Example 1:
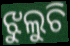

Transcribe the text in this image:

ଝୁଲୁଚି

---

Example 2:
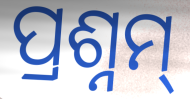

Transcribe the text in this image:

ପ୍ରଶ୍ନମ୍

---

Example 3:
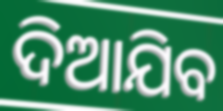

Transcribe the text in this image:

ଦିଆଯିବ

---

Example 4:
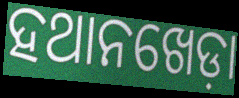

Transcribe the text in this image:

ହଥାନଖେଡ଼ା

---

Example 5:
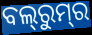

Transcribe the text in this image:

ବଲ୍‍ରୁମ୍‌ର